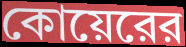
কোয়েরের